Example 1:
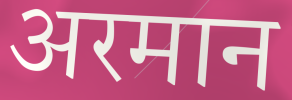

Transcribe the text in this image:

अरमान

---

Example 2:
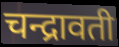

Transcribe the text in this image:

चन्द्रावती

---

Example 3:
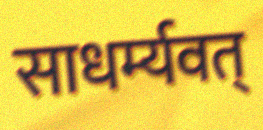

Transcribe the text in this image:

साधर्म्यवत्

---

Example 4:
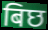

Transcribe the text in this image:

बिछ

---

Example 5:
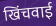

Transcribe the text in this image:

खिंचवाई